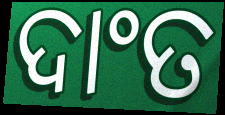
ଦାଂତ